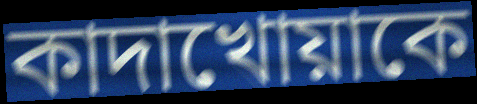
কাদাখোয়াকে